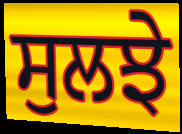
ਸੁਲਝੇ